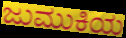
ಜುಮುಕಿಯ